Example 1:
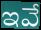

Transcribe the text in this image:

ఇవే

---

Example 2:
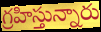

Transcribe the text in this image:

గ్రహిస్తున్నారు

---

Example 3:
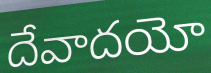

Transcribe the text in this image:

దేవాదయో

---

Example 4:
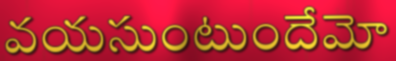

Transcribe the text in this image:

వయసుంటుందేమో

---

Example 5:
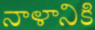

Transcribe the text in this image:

నాళానికి